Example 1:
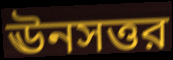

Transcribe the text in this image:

ঊনসত্তর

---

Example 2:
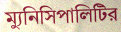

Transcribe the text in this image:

ম্যুনিসিপালিটির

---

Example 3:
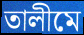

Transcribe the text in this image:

তালীমে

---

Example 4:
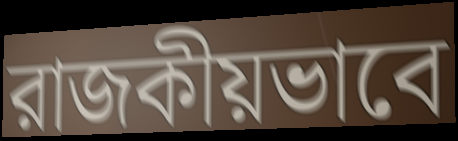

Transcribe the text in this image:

রাজকীয়ভাবে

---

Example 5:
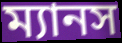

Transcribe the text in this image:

ম্যানস